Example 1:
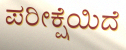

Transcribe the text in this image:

ಪರೀಕ್ಷೆಯಿದೆ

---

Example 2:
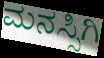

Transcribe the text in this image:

ಮನಸ್ಸಿಗಿ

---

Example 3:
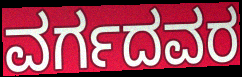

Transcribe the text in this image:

ವರ್ಗದವರ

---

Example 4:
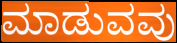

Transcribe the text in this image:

ಮಾಡುವವು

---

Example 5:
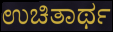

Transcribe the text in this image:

ಉಚಿತಾರ್ಥ